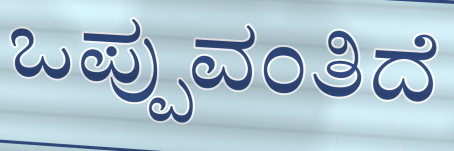
ಒಪ್ಪುವಂತಿದೆ